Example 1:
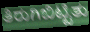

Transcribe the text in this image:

ತಿರುಗಿಬಿಟ್ಟಿತು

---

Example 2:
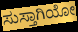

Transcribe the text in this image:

ಸುಸ್ತಾಗಿಯೋ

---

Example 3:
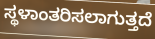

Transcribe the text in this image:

ಸ್ಥಳಾಂತರಿಸಲಾಗುತ್ತದೆ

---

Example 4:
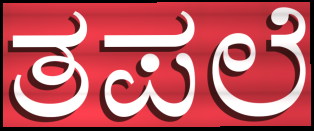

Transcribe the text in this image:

ತಪಲೆ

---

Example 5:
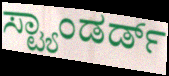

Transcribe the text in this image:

ಸ್ಟ್ಯಾಂಡರ್ಡ್